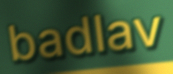
badlav